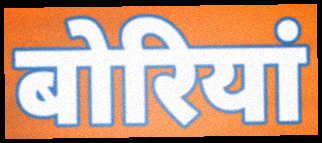
बोरियां